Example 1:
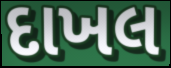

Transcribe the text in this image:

દાખલ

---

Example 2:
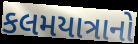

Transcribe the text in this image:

કલમયાત્રાનો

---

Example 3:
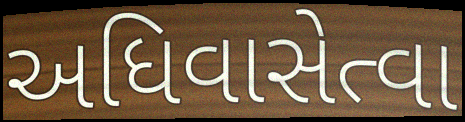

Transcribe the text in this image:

અધિવાસેત્વા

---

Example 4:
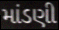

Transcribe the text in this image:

માંડણી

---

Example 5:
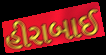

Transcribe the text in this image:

હીરાબાઈ